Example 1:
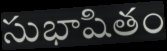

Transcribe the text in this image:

సుభాషితం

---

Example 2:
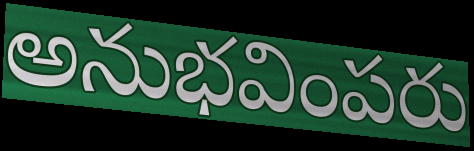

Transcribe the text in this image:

అనుభవింపరు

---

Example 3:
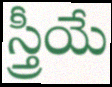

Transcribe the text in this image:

స్త్రీయే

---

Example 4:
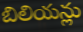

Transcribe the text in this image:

బిలియన్లు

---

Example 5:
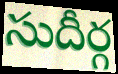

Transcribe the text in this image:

సుదీర్గ